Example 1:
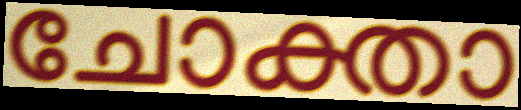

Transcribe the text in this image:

ചോക്താ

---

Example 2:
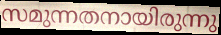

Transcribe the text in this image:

സമുന്നതനായിരുന്നു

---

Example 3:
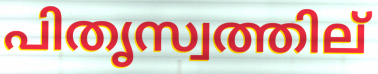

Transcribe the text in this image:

പിതൃസ്വത്തില്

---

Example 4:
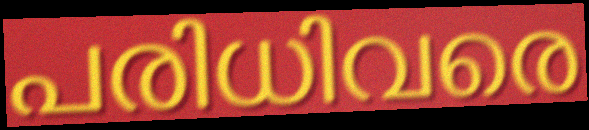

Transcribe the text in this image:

പരിധിവരെ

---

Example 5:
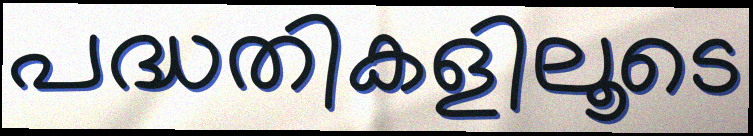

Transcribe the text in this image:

പദ്ധതികളിലൂടെ